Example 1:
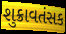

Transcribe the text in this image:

શુક્રાવતંસક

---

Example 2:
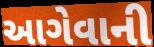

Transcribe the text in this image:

આગેવાની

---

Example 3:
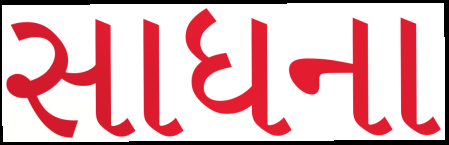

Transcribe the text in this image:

સાધના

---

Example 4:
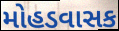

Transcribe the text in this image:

મોહડવાસક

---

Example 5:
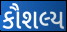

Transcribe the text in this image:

કૌશલ્ય